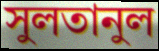
সুলতানুল